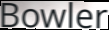
Bowler